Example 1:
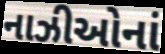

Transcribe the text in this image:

નાઝીઓનાં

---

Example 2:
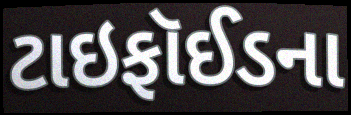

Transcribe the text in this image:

ટાઇફૉઈડના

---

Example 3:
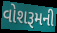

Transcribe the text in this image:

વોશરૂમની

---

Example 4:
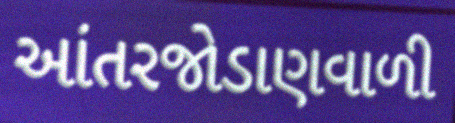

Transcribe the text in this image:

આંતરજોડાણવાળી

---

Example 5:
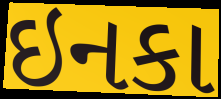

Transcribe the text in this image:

ઇનકા